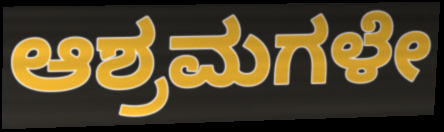
ಆಶ್ರಮಗಳೇ